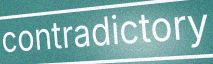
contradictory